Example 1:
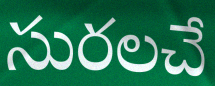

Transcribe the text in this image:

సురలచే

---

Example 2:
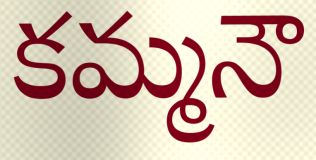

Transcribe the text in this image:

కమ్మనౌ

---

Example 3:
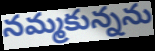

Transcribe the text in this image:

నమ్మకున్నను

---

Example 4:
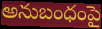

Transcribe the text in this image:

అనుబంధంపై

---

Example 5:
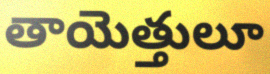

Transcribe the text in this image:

తాయెత్తులూ